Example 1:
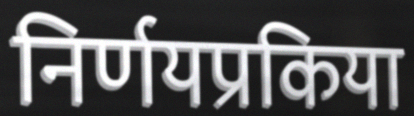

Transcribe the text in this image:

निर्णयप्रकिया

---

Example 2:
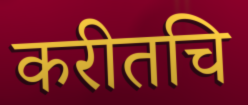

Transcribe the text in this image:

करीतचि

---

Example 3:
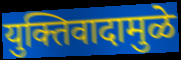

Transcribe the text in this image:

युक्तिवादामुळे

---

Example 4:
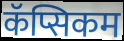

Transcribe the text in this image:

कॅप्सिकम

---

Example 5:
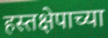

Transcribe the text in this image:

हस्तक्षेपाच्या